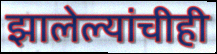
झालेल्यांचीही